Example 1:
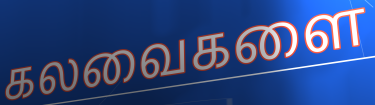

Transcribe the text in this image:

கலவைகளை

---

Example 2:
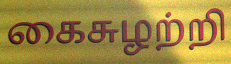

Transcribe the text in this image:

கைசுழற்றி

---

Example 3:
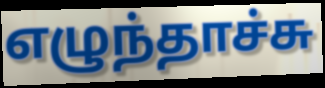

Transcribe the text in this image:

எழுந்தாச்சு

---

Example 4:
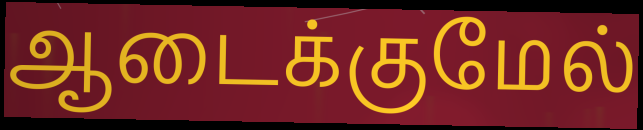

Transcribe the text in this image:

ஆடைக்குமேல்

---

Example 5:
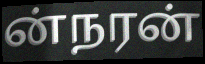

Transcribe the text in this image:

ன்நரன்